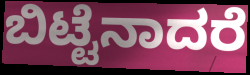
ಬಿಟ್ಟೆನಾದರೆ